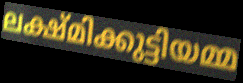
ലക്ഷ്മിക്കുട്ടിയമ്മ